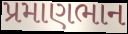
પ્રમાણભાન